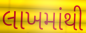
લાખમાંથી